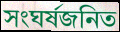
সংঘর্ষজনিত